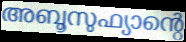
അബൂസുഫ്യാന്റെ